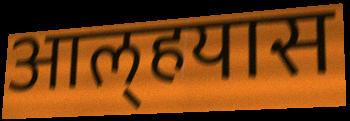
आल्हयास